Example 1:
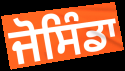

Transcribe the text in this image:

ਜੋਸਿੰਡਾ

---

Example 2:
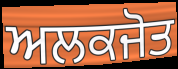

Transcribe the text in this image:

ਅਲਕਜੋਤ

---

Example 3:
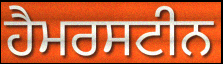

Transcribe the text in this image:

ਹੈਮਰਸਟੀਨ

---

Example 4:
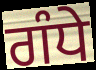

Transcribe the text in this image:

ਗੰਧੇ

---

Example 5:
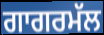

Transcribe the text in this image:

ਗਾਗਰਮੱਲ